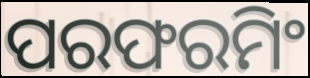
ପରଫରମିଂ